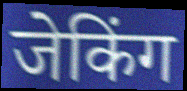
जेकिंग